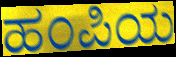
ಹಂಪಿಯ